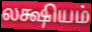
லக்ஷியம்